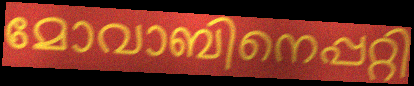
മോവാബിനെപ്പറ്റി